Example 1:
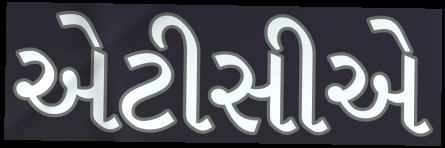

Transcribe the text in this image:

એટીસીએ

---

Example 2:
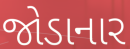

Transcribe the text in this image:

જોડાનાર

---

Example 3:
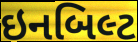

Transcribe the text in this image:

ઇનબિલ્ટ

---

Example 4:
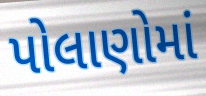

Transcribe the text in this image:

પોલાણોમાં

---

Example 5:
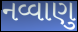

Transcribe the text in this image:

નવ્વાણુ